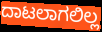
ದಾಟಲಾಗಲಿಲ್ಲ